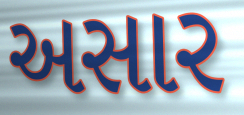
અસાર